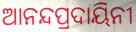
ଆନନ୍ଦପ୍ରଦାୟିନୀ